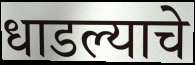
धाडल्याचे